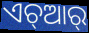
ଏଚ୍ଆର୍